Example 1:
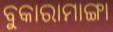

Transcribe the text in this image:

ବୁକାରାମାଙ୍ଗା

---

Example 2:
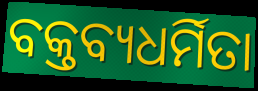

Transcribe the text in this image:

ବକ୍ତବ୍ୟଧର୍ମିତା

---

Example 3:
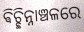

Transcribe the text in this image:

ଵିଚ୍ଛିନ୍ନାଞ୍ଚଳରେ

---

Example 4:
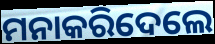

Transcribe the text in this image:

ମନାକରିଦେଲେ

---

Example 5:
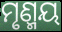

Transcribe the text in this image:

ମୃଣ୍ମୟ